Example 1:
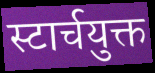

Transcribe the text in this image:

स्टार्चयुक्त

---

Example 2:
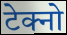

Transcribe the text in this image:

टेक्‍नो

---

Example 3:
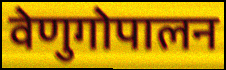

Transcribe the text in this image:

वेणुगोपालन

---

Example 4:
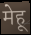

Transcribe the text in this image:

मेहू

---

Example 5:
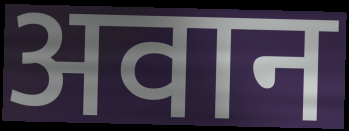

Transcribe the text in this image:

अवान